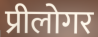
प्रीलोगर